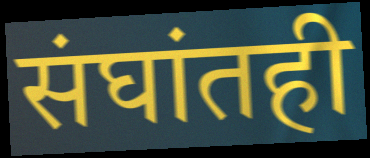
संघांतही